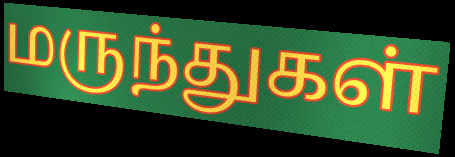
மருந்துகள்